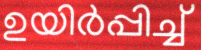
ഉയിർപ്പിച്ച്